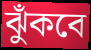
ঝুঁকবে